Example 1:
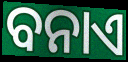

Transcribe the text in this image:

ବନାଏ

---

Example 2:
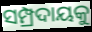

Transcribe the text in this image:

ସମ୍ପ୍ରଦାୟକୁ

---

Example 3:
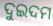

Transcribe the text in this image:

ଦୁଇଦମ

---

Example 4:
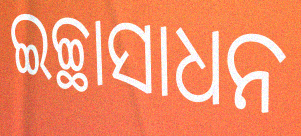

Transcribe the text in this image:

ଇଚ୍ଛାସାଧନ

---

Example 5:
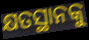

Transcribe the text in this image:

କ୍ଷତସ୍ଥାନକୁ